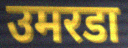
उमरडा